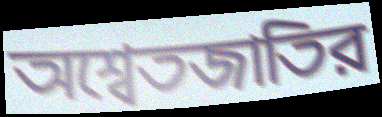
অশ্বেতজাতির